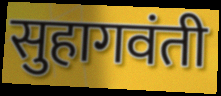
सुहागवंती